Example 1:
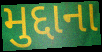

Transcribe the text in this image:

મુદ્દાના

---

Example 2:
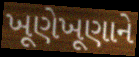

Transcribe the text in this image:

ખૂણેખૂણાને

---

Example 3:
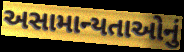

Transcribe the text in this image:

અસામાન્યતાઓનું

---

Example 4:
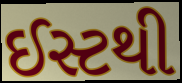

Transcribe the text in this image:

ઈસ્ટથી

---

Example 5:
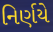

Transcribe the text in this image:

નિર્ણયે